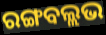
ରଙ୍ଗବଲ୍ଲଭ